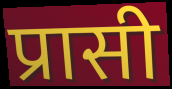
प्रासी